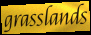
grasslands